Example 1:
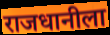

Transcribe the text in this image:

राजधानीला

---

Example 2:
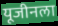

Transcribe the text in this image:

यूजीनला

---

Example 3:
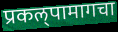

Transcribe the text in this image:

प्रकल्पामागचा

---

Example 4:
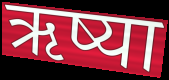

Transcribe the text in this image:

ऋष्या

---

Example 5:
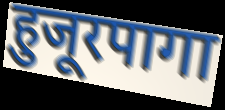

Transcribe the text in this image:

हुजूरपागा